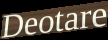
Deotare